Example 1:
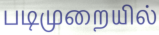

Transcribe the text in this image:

படிமுறையில்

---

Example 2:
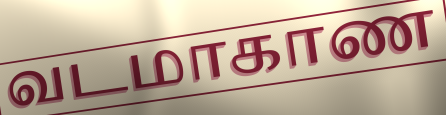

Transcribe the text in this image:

வடமாகாண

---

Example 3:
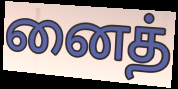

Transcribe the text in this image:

னைத்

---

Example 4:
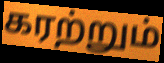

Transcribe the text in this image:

கரற்றும்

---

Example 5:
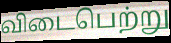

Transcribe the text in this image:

விடைபெற்று